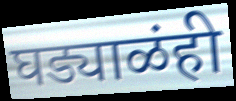
घड्याळंही